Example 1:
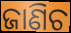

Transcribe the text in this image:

ଜାଣିଚ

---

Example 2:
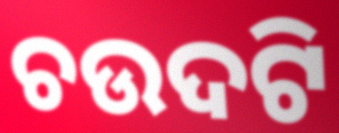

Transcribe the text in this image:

ଚଉଦଟି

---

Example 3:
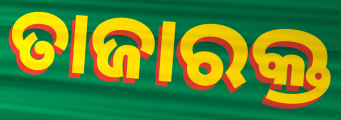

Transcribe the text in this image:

ତାଜାରକ୍ତ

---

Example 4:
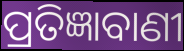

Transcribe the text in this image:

ପ୍ରତିଜ୍ଞାବାଣୀ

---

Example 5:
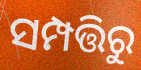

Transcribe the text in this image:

ସମ୍ପତ୍ତିରୁ